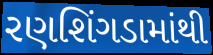
રણશિંગડામાંથી